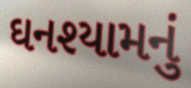
ઘનશ્યામનું